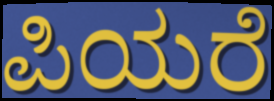
ಪಿಯರೆ